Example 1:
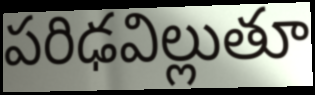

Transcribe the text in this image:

పరిఢవిల్లుతూ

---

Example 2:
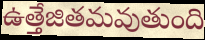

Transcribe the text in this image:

ఉత్తేజితమవుతుంది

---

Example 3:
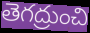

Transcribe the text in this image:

తెగద్రుంచి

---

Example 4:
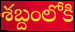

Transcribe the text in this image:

శబ్దంలోకి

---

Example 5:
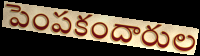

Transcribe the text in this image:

పెంపకందారుల